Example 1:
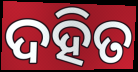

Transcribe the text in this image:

ଦହିତ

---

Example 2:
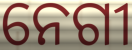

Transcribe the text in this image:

ନେଗୀ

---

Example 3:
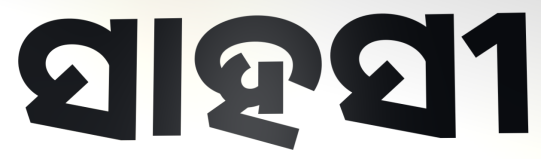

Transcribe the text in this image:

ସାହସୀ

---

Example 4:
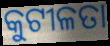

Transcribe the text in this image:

କୁଟୀଳତା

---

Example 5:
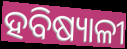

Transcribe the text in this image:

ହବିଷ୍ୟାଳୀ